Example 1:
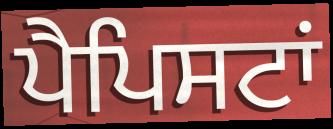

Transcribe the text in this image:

ਪੈਪਿਸਟਾਂ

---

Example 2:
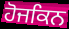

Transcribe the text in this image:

ਹੋਜਕਿਨ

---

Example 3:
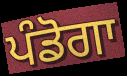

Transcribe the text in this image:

ਪੰਡੋਗਾ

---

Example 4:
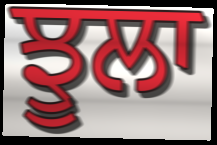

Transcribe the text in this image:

ਝੂਲਾ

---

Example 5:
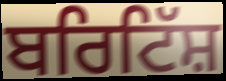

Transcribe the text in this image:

ਬਰਿਟਿੱਸ਼